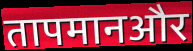
तापमानऔर